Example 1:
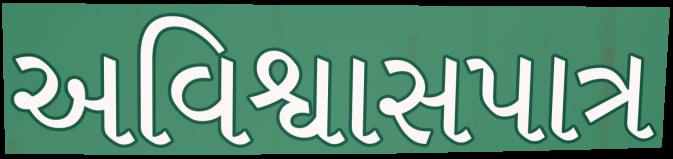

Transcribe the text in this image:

અવિશ્વાસપાત્ર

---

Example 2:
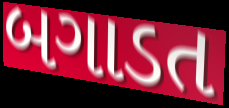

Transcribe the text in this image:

બગાડત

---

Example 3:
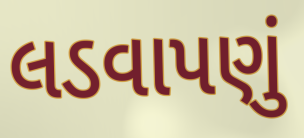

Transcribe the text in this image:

લડવાપણું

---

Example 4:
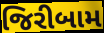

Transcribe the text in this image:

જિરીબામ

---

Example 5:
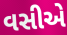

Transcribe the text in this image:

વસીએ